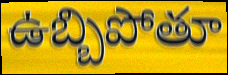
ఉబ్బిపోతూ